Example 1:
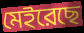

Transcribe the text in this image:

মেইরেছে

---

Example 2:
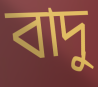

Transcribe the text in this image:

বাদু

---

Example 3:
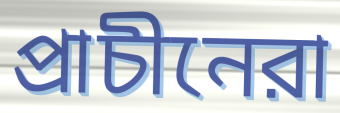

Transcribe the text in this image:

প্রাচীনেরা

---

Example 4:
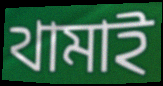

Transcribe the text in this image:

থামাই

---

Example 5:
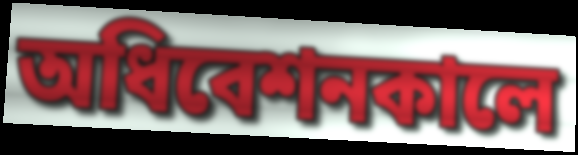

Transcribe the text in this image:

অধিবেশনকালে